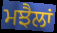
ਮਝੈਲਾਂ